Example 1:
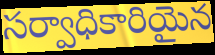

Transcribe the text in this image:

సర్వాధికారియైన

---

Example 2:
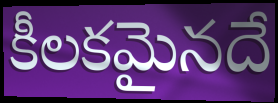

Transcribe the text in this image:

కీలకమైనదే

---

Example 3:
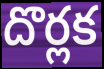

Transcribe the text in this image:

దొర్లక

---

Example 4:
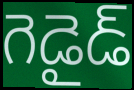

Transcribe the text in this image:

గెడైడ్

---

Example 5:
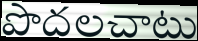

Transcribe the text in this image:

పొదలచాటు